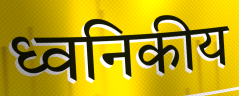
ध्वनिकीय